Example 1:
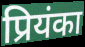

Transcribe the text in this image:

प्रियंका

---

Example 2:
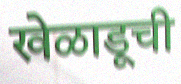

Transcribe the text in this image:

खेळाडूची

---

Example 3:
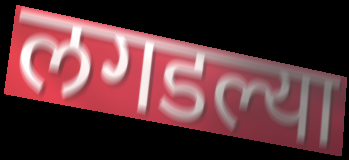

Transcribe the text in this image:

लगडल्या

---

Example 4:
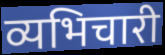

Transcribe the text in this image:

व्यभिचारी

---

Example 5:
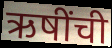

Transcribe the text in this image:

ऋषींची